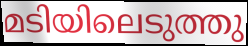
മടിയിലെടുത്തു